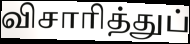
விசாரித்துப்